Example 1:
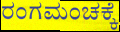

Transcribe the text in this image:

ರಂಗಮಂಚಕ್ಕೆ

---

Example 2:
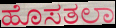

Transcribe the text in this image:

ಹೊಸತಲಾ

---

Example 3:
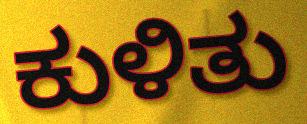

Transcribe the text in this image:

ಕುಳಿತು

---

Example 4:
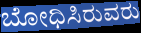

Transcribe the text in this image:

ಬೋಧಿಸಿರುವರು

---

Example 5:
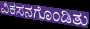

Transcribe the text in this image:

ವಿಕಸನಗೊಂಡಿತು